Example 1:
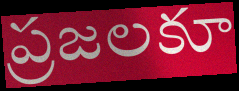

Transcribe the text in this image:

ప్రజలకూ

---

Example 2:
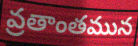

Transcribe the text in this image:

వ్రతాంతమున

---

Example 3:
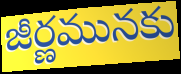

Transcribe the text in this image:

జీర్ణమునకు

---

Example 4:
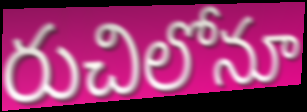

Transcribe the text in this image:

రుచిలోనూ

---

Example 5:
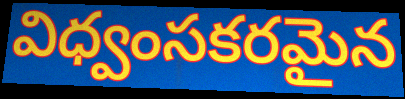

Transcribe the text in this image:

విధ్వంసకరమైన